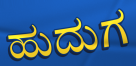
ಹುದುಗ